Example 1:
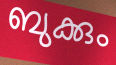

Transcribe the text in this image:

ബുക്കും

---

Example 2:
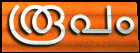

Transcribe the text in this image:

രൂപം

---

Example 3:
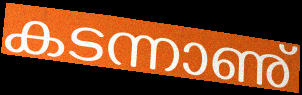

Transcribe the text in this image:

കടന്നാണു്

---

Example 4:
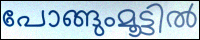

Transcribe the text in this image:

പോങ്ങുംമൂട്ടിൽ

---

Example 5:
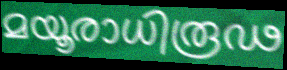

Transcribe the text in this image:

മയൂരാധിരൂഢ